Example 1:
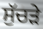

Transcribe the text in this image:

ਸੁੱਚੜੇ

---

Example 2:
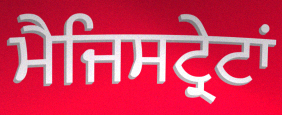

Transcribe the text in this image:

ਮੈਜਿਸਟ੍ਰੇਟਾਂ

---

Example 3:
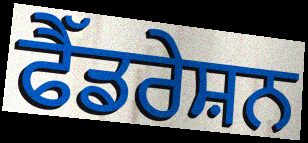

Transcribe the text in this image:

ਫੈੱਡਰੇਸ਼ਨ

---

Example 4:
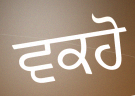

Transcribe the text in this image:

ਵਕਹੋ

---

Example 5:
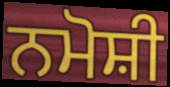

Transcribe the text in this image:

ਨਮੋਸ਼ੀ